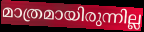
മാത്രമായിരുന്നില്ല